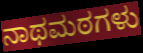
ನಾಥಮಠಗಳು